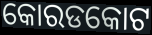
କୋରଡକୋଟ